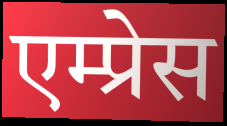
एम्प्रेस